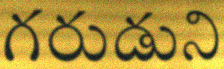
గరుడుని